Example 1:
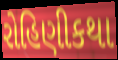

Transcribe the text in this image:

રોહિણીકથા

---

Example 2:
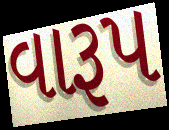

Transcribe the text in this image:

વારૂપ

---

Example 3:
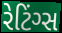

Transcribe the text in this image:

રેટિંગ્સ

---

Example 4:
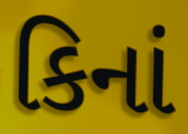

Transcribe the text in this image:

કિનાં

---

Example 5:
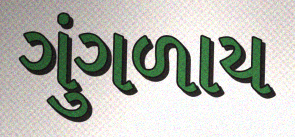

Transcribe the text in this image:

ગુંગળાય